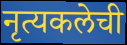
नृत्यकलेची